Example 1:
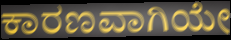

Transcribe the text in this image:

ಕಾರಣವಾಗಿಯೇ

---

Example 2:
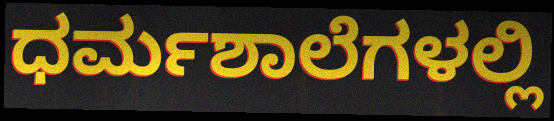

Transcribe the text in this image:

ಧರ್ಮಶಾಲೆಗಳಲ್ಲಿ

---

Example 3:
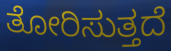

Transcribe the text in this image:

ತೋರಿಸುತ್ತದೆ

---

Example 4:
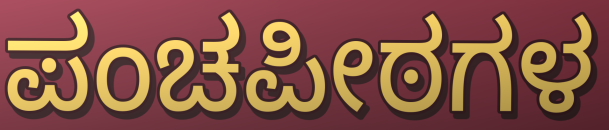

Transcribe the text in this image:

ಪಂಚಪೀಠಗಳ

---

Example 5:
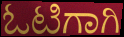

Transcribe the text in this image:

ಓಟಿಗಾಗಿ